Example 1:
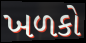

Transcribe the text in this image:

ખળકો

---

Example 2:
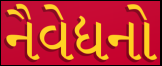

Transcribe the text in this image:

નૈવેદ્યનો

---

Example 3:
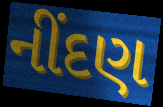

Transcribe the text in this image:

નીંદણ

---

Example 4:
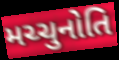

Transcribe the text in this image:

મચ્ચુનોતિ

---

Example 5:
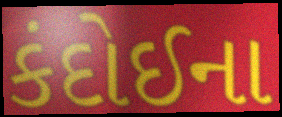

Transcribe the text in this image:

કંદોઈના